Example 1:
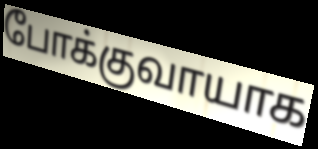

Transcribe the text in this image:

போக்குவாயாக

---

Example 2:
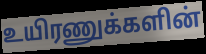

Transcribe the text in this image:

உயிரணுக்களின்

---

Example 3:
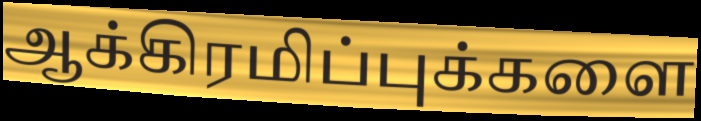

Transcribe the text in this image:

ஆக்கிரமிப்புக்களை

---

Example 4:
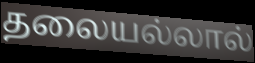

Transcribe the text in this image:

தலையல்லால்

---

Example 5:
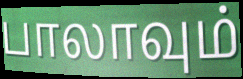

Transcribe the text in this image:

பாலாவும்